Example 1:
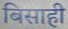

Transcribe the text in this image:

बिसाही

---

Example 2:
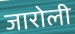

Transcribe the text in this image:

जारोली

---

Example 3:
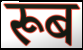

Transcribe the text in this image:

रूब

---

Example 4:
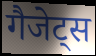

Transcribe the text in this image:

गैजेट्स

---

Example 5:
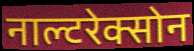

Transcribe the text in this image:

नाल्टरेक्सोन